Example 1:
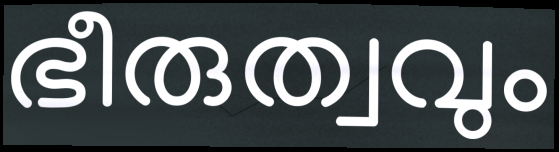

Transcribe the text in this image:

ഭീരുത്വവും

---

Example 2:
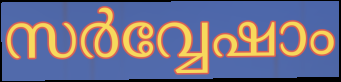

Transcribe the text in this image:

സർവ്വേഷാം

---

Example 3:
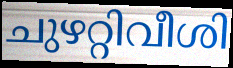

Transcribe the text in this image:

ചുഴറ്റിവീശി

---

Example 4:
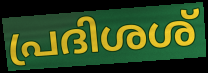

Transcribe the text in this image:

പ്രദിശശ്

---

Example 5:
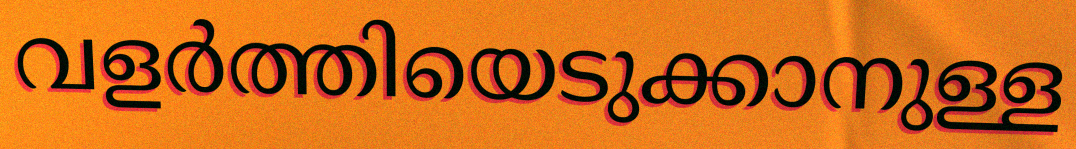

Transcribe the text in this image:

വളർത്തിയെടുക്കാനുള്ള